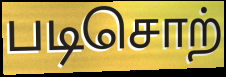
படிசொற்